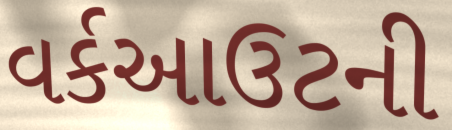
વર્કઆઉટની